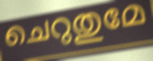
ചെറുതുമേ